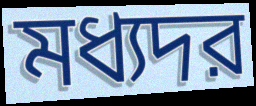
মধ্যদর